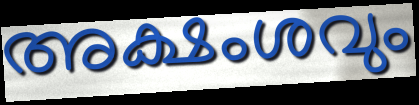
അക്ഷംശവും